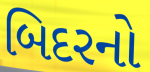
બિદરનો